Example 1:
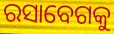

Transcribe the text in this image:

ରସାବେଗକୁ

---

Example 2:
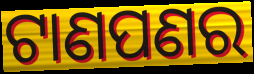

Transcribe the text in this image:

ଟାଣପଣର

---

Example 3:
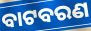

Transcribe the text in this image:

ବାଟବରଣ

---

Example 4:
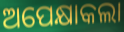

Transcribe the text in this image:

ଅପେକ୍ଷାକଲା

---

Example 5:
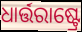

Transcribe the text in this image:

ଧାର୍ତ୍ତରାଷ୍ଟ୍ରେ